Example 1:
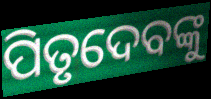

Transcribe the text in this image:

ପିତୃଦେବଙ୍କୁ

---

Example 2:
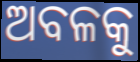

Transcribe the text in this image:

ଅବଳକୁ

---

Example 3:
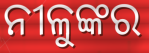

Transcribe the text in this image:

ନୀଳୁଙ୍କର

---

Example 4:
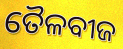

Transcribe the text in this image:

ତୈଳବୀଜ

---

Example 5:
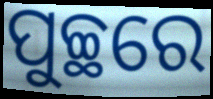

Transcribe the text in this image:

ପୁଚ୍ଛରେ